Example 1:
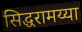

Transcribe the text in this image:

सिद्धरामय्या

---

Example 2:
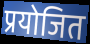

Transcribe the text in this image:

प्रयोजित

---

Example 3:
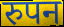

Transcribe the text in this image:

रुपन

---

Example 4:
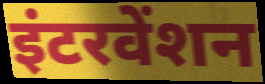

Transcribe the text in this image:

इंटरवेंशन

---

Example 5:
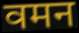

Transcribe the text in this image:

वमन